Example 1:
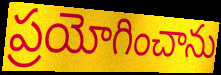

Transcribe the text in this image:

ప్రయోగించాను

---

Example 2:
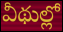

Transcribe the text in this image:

వీథుల్లో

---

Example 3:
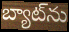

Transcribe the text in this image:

బ్యాట్‌ను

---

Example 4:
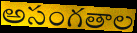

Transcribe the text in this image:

అసంగతాల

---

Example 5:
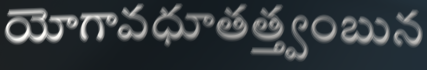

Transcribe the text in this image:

యోగావధూతత్త్వంబున